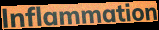
Inflammation